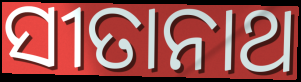
ସୀତାନାଥ